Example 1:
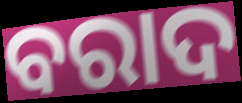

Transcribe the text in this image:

ବରାଦ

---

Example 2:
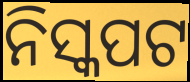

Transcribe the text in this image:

ନିସ୍କପଟ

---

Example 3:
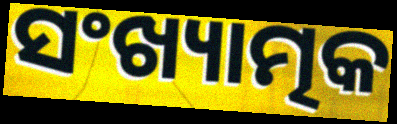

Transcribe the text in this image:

ସଂଖ୍ୟାତ୍ମକ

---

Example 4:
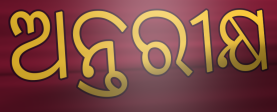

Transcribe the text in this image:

ଅନ୍ତରୀକ୍ଷ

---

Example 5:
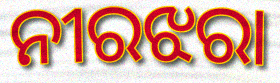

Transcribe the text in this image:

ନୀରଝରା